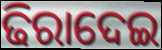
ଢିରାଦେଇ